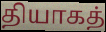
தியாகத்